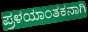
ಪ್ರಳಯಾಂತಕನಾಗಿ